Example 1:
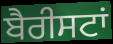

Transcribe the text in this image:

ਬੈਰੀਸਟਾਂ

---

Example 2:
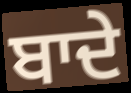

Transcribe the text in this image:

ਬਾਦੇ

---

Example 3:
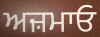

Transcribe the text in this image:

ਅਜ਼ਮਾਓ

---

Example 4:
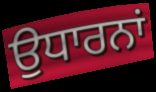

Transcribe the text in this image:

ਉਧਾਰਨਾਂ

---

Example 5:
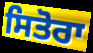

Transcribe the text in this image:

ਸਿਤੋਰਾ